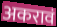
अकरावं